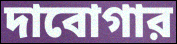
দাবোগার